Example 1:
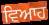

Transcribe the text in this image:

ਵਿਆਹ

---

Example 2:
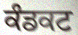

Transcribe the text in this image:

ਕੰਡਕਟ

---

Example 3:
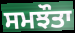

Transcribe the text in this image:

ਸਮਝੌਤਾ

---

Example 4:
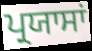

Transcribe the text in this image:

ਪ੍ਰਯਾਸਾਂ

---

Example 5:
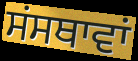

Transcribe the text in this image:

ਸਂਸਥਾਵਾਂ